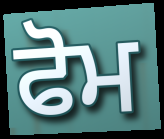
ਫੋਮ